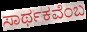
ಸಾರ್ಥಕವೆಂಬ